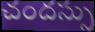
చందస్సు